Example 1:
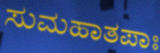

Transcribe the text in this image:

ಸುಮಹಾತಪಾಃ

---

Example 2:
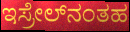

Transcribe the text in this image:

ಇಸ್ರೇಲ್‌ನಂತಹ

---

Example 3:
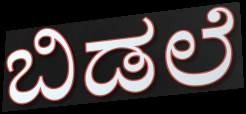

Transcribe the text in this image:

ಬಿಡಲೆ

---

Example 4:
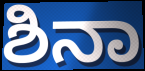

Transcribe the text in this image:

ಶಿನಾ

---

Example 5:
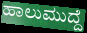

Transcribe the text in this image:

ಹಾಲುಮುದ್ದೆ